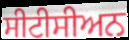
ਸੀਟੀਸੀਅਨ